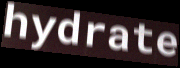
hydrate